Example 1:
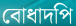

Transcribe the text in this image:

বোধাদপি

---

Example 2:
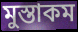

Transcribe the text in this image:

মুস্তাকম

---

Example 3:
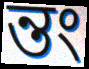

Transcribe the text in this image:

ন্তং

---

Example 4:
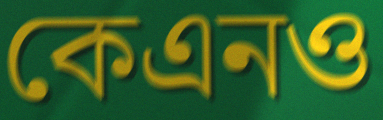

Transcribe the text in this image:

কেএনও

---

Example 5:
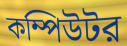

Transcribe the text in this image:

কম্পিউটর